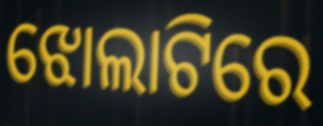
ଝୋଲାଟିରେ